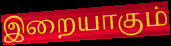
இறையாகும்